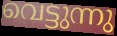
വെട്ടുന്നു